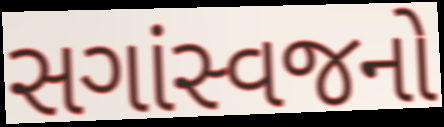
સગાંસ્વજનો